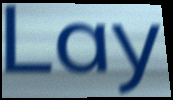
Lay